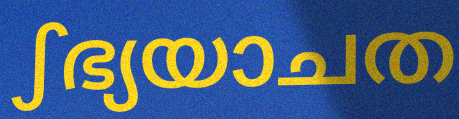
ഽഭ്യയാചത